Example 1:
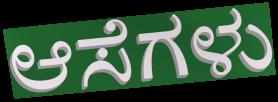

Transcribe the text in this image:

ಆಸೆಗಳು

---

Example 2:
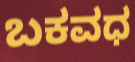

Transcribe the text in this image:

ಬಕವಧ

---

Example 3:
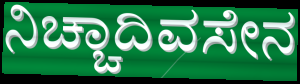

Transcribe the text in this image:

ನಿಚ್ಚಾದಿವಸೇನ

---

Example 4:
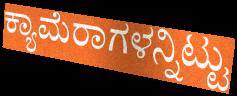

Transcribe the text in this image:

ಕ್ಯಾಮೆರಾಗಳನ್ನಿಟ್ಟು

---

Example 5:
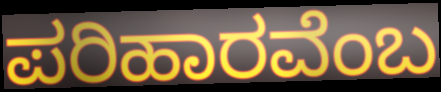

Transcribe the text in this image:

ಪರಿಹಾರವೆಂಬ